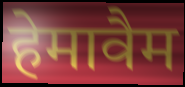
हेमावैम